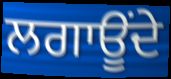
ਲਗਾਊਂਦੇ